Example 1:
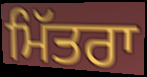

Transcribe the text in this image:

ਮਿੱਤਰਾ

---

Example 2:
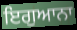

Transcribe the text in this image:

ਇਗੁਆਨਾ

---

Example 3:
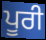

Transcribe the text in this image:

ਪੂਰੀ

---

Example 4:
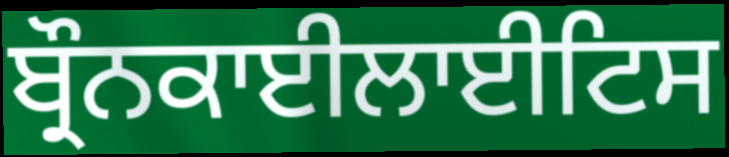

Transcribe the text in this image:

ਬ੍ਰੌਨਕਾਈਲਾਈਟਿਸ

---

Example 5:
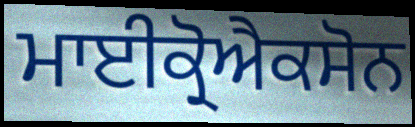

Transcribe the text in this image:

ਮਾਈਕ੍ਰੋਐਕਸੋਨ